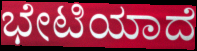
ಭೇಟಿಯಾದೆ